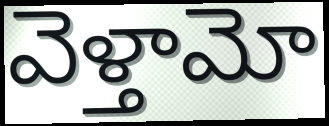
వెళ్తామో